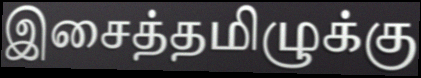
இசைத்தமிழுக்கு